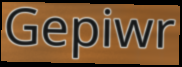
Gepiwr